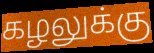
கழலுக்கு